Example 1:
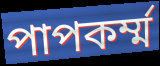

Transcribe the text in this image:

পাপকর্ম্ম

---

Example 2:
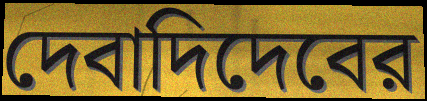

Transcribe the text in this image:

দেবাদিদেবের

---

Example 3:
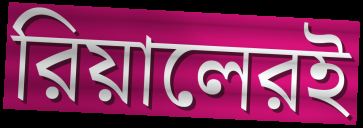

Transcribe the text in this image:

রিয়ালেরই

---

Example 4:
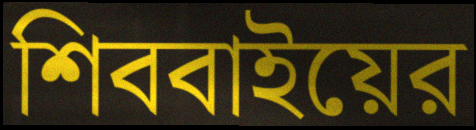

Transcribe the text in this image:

শিববাইয়ের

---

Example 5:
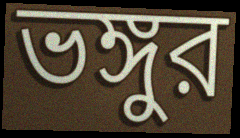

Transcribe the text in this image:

ভঙ্গুর